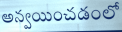
అన్వయించడంలో